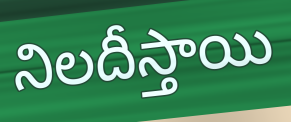
నిలదీస్తాయి